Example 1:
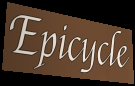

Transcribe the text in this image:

Epicycle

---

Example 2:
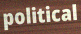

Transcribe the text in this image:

political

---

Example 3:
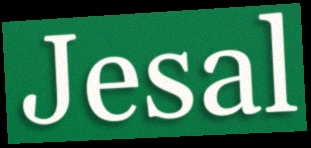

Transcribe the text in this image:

Jesal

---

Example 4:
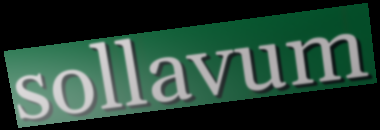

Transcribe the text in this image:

sollavum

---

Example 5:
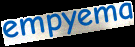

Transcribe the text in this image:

empyema